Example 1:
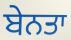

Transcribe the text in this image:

ਬੇਨਤਾ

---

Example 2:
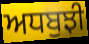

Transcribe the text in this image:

ਅਧਬੁਝੀ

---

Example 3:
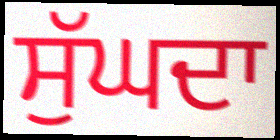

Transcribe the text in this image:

ਸੁੱਘਦਾ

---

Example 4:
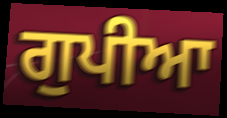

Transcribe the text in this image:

ਗੁਪੀਆ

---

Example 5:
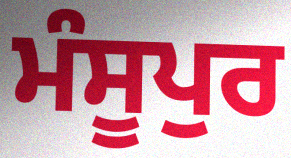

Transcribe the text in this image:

ਮੰਸੂਪੁਰ